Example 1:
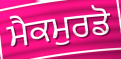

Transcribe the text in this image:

ਮੈਕਮੁਰਡੋ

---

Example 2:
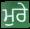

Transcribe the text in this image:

ਮੁਰੇ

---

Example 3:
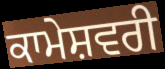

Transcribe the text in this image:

ਕਾਮੇਸ਼ਵਰੀ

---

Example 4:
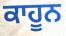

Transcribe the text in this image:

ਕਾਹੂਨ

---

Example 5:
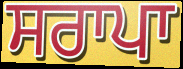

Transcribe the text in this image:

ਸਰਾਪਾ